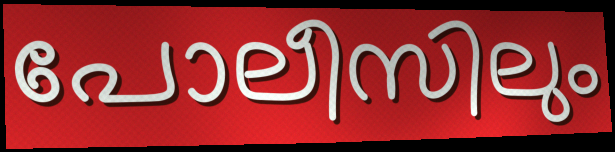
പോലീസിലും